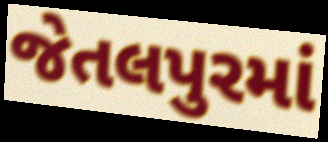
જેતલપુરમાં